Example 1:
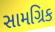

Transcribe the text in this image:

સામગ્રિક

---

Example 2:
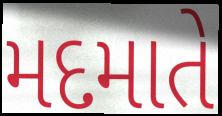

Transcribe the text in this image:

મદમાતે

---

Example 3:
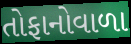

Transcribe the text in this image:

તોફાનોવાળા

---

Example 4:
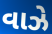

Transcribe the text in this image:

વાઝે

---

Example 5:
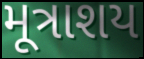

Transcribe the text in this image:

મૂત્રાશય